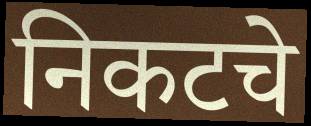
निकटचे